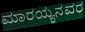
ಮಾರಯ್ಯನವರ